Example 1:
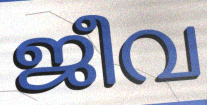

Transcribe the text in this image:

ജീവ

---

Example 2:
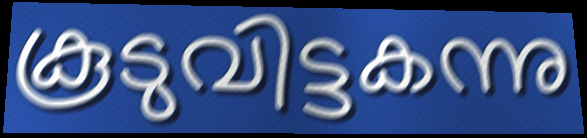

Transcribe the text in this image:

കൂടുവിട്ടകന്നു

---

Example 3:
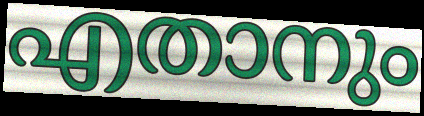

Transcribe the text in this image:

എതാനും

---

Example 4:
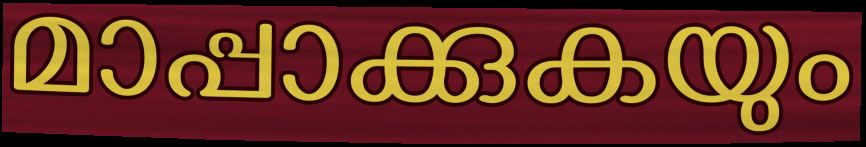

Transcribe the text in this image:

മാപ്പാക്കുകയും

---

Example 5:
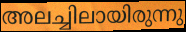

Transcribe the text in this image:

അലച്ചിലായിരുന്നു